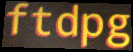
ftdpg